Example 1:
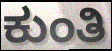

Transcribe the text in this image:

ಕುಂತಿ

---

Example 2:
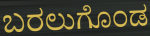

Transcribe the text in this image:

ಬರಲುಗೊಂಡ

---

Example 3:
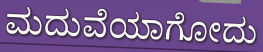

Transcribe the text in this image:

ಮದುವೆಯಾಗೋದು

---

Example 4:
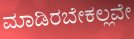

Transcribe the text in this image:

ಮಾಡಿರಬೇಕಲ್ಲವೇ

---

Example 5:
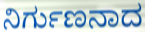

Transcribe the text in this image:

ನಿರ್ಗುಣನಾದ